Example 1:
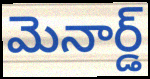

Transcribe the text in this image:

మెనార్డ్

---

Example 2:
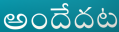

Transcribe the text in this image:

అందేదట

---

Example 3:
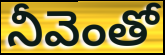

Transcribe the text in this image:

నీవెంతో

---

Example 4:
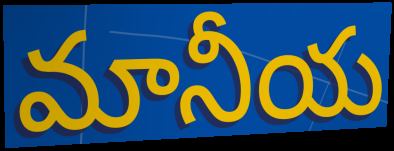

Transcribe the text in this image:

మానీయ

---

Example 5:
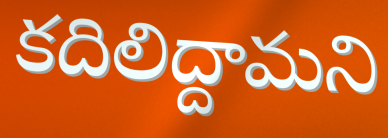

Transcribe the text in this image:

కదిలిద్దామని